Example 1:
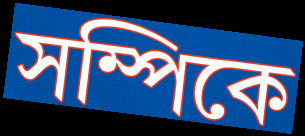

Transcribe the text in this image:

সম্পিকে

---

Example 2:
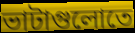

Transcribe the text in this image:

ভাটাগুলোতে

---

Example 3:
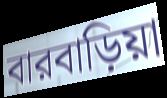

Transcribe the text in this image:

বারবাড়িয়া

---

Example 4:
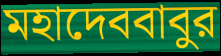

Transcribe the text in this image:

মহাদেববাবুর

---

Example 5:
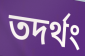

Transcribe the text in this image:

তদর্থং